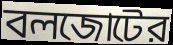
বলজোটের